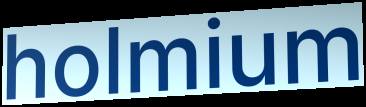
holmium